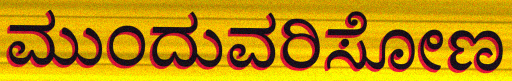
ಮುಂದುವರಿಸೋಣ